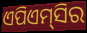
ଏପିଏମ୍‌ସିର